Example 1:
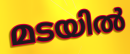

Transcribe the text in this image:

മടയിൽ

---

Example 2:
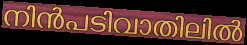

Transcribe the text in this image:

നിൻപടിവാതിലിൽ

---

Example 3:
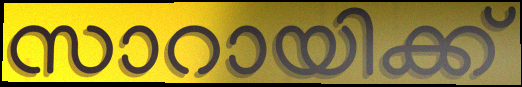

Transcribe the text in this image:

സാറായിക്ക്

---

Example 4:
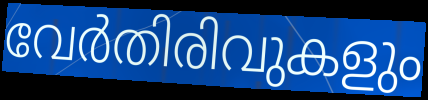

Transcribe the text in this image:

വേർതിരിവുകളും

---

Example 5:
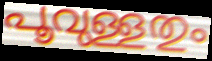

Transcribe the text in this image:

പൂവുള്ളതും